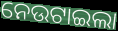
ନେଉଟାଇଲା